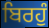
ਬਿਰਹੁੰ